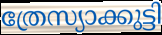
ത്രേസ്യാക്കുട്ടി